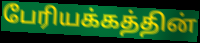
பேரியக்கத்தின்